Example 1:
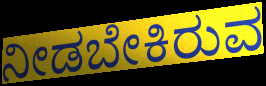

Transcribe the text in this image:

ನೀಡಬೇಕಿರುವ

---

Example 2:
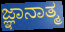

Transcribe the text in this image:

ಜ್ಞಾನಾತ್ಮ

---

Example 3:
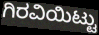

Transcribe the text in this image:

ಗಿರವಿಯಿಟ್ಟು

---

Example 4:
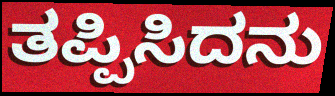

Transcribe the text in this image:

ತಪ್ಪಿಸಿದನು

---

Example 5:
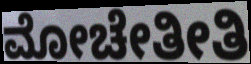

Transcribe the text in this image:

ಮೋಚೇತೀತಿ